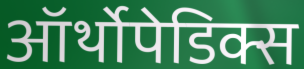
ऑर्थोपेडिक्स